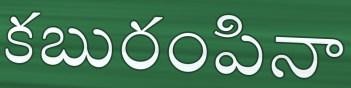
కబురంపినా